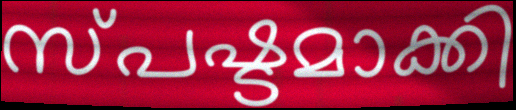
സ്പഷ്ടമാക്കി